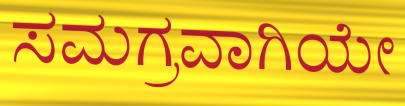
ಸಮಗ್ರವಾಗಿಯೇ